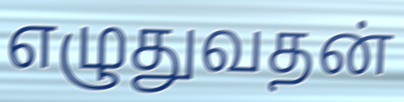
எழுதுவதன்